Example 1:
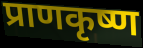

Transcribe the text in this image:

प्राणकृष्ण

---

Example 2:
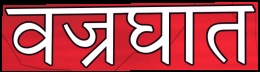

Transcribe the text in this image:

वज्रघात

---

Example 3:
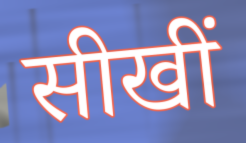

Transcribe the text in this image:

सीखीं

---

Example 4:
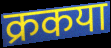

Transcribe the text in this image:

क्रकया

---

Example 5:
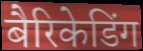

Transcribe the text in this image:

बैरिकेडिंग